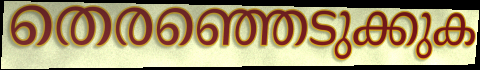
തെരഞ്ഞെടുക്കുക